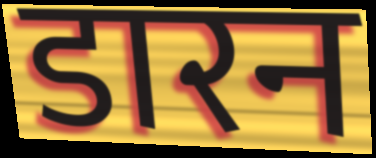
डारन